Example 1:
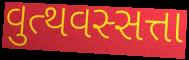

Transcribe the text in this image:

વુત્થવસ્સત્તા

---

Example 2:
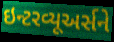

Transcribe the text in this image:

ઇન્ટરવ્યૂઅર્સને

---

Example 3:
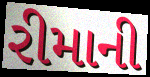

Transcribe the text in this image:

રીમાની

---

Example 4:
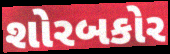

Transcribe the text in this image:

શોરબકોર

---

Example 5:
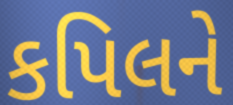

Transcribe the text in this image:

કપિલને